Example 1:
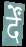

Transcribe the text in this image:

र्दें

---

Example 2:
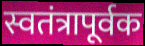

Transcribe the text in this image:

स्वतंत्रापूर्वक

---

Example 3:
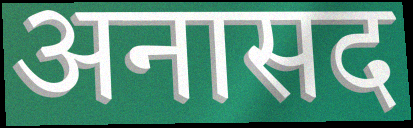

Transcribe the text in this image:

अनासद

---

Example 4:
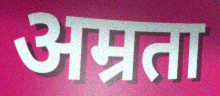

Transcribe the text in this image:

अम्रता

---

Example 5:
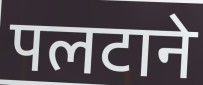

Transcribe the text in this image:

पलटाने